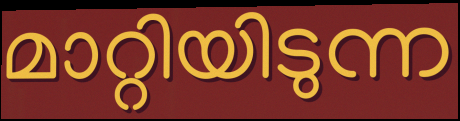
മാറ്റിയിടുന്ന